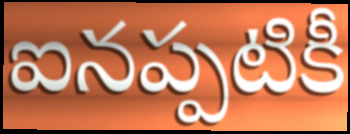
ఐనప్పటికీ